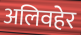
अलिवहेर